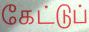
கேட்டுப்